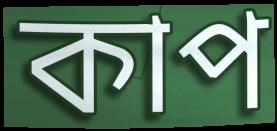
কাপ